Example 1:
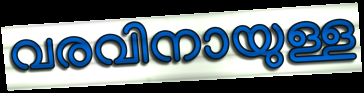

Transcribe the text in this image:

വരവിനായുള്ള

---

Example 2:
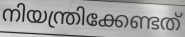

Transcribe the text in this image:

നിയന്ത്രിക്കേണ്ടത്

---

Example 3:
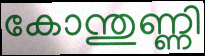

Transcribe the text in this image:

കോന്തുണ്ണി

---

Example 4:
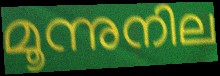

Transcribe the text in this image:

മൂന്നുനില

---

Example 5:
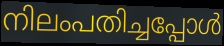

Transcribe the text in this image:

നിലംപതിച്ചപ്പോൾ